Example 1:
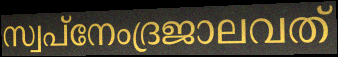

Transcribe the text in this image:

സ്വപ്നേംദ്രജാലവത്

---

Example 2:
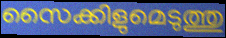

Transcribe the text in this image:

സൈക്കിളുമെടുത്തു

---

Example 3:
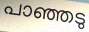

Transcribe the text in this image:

പാഞ്ഞടു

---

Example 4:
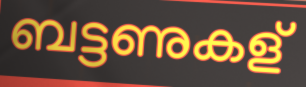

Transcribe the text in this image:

ബട്ടണുകള്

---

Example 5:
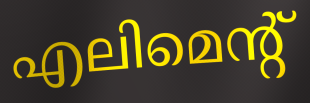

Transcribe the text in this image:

എലിമെന്റ്